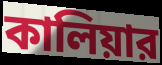
কালিয়ার